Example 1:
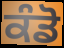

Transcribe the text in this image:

ਕੰਡੋ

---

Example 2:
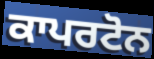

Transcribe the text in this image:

ਕਾਪਰਟੋਨ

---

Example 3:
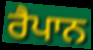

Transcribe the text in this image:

ਰੈਪਾਨ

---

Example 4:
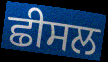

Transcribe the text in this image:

ਛੀਸਲ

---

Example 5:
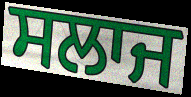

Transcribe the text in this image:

ਸਲਾਜ